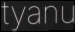
tyanu